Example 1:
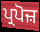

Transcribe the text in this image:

ਪ੍ਰਪੋਜ਼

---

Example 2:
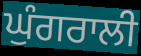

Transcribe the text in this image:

ਘੁੰਗਰਾਲੀ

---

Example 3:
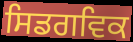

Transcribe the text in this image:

ਸਿਡਗਵਿਕ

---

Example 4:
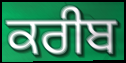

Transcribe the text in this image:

ਕਰੀਬ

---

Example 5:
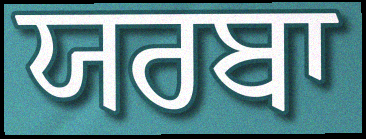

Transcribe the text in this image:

ਯਰਬਾ